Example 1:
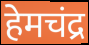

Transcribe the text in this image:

हेमचंद्र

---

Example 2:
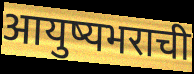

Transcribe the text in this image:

आयुष्यभराची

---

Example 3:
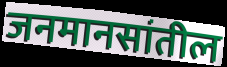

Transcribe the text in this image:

जनमानसांतील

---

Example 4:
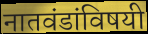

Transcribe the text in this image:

नातवंडांविषयी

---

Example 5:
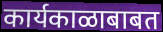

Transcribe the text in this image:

कार्यकाळाबाबत